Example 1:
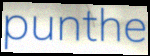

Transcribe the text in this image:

punthe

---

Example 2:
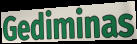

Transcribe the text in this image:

Gediminas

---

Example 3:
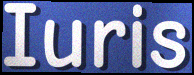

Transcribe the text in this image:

Iuris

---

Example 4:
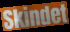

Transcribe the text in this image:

Skindet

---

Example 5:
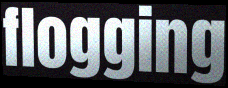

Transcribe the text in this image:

flogging